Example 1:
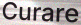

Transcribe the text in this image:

Curare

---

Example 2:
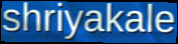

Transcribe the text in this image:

shriyakale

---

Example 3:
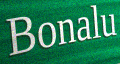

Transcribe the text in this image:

Bonalu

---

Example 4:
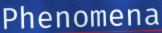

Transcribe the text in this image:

Phenomena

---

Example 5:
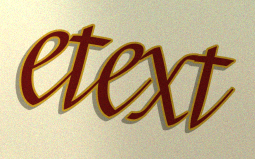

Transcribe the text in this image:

etext